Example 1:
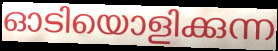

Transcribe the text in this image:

ഓടിയൊളിക്കുന്ന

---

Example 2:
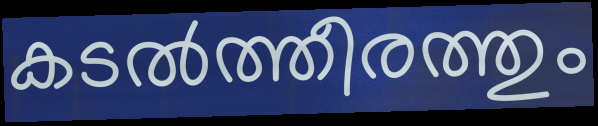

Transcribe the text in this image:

കടൽത്തീരത്തും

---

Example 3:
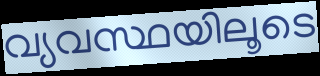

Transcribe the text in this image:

വ്യവസ്ഥയിലൂടെ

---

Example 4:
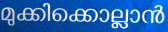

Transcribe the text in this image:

മുക്കിക്കൊല്ലാൻ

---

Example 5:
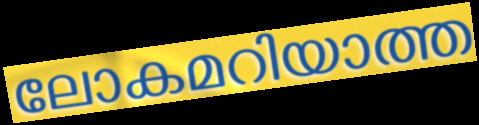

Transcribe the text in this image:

ലോകമറിയാത്ത